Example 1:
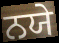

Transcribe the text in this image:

ਨਯੇ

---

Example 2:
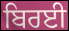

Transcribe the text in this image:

ਬਿਰਈ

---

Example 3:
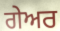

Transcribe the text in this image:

ਗੇਅਰ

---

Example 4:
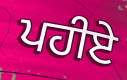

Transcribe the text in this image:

ਪਹੀਏ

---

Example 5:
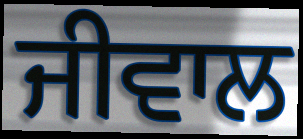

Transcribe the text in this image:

ਜੀਵਾਲ